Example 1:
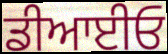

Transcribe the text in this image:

ਡੀਆਈਓ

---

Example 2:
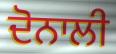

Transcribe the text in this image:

ਦੋਨਾਲੀ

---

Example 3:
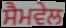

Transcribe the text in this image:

ਸੈਮਵੇਲ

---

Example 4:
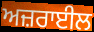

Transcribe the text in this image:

ਅਜ਼ਰਾਈਲ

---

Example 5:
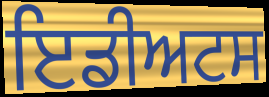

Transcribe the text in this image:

ਇਡੀਅਟਸ